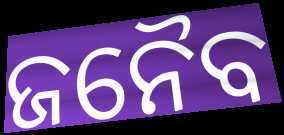
ଜନୈବ